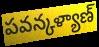
పవన్కళ్యాణ్